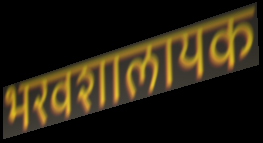
भरवशालायक